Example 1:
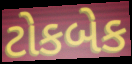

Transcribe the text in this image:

ટોકબેક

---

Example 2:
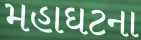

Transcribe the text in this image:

મહાઘટના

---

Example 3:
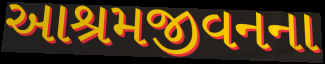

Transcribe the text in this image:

આશ્રમજીવનના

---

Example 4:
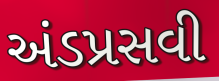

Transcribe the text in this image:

અંડપ્રસવી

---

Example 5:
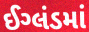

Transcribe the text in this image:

ઈગ્લંડમાં